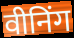
वीनिंग